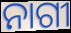
ନାଗୀ